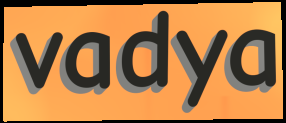
vadya